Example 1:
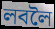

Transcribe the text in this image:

লবলৈ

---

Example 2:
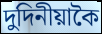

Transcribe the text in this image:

দুদিনীয়াকৈ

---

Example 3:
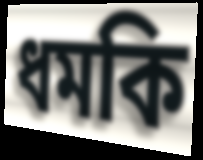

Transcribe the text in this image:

ধমকি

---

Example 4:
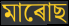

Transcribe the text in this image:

মাৰোছ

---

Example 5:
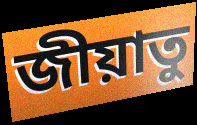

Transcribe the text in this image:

জীয়াতু